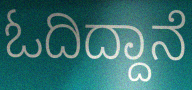
ಓದಿದ್ದಾನೆ